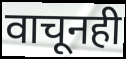
वाचूनही